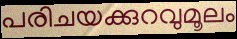
പരിചയക്കുറവുമൂലം